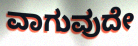
ವಾಗುವುದೇ